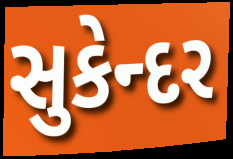
સુકેન્દર